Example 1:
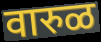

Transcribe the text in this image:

वारुळ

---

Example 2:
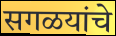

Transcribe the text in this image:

सगळयांचे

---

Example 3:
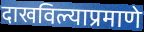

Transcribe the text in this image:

दाखविल्याप्रमाणे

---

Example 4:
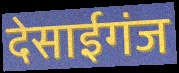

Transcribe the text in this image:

देसाईगंज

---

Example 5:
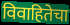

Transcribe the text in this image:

विवाहितेचा